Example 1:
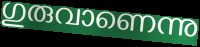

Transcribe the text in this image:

ഗുരുവാണെന്നു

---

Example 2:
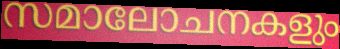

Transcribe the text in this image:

സമാലോചനകളും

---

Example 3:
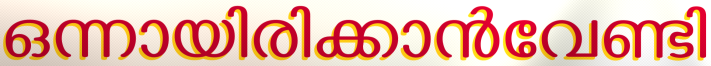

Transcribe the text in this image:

ഒന്നായിരിക്കാൻവേണ്ടി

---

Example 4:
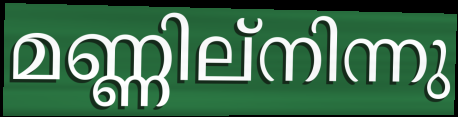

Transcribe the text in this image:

മണ്ണില്നിന്നു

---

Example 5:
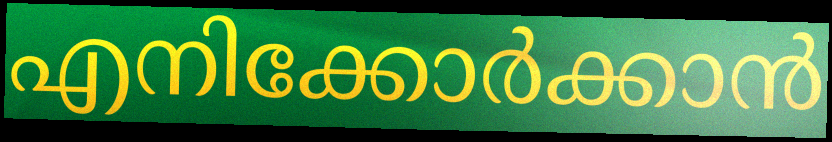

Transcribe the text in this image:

എനിക്കോർക്കാൻ